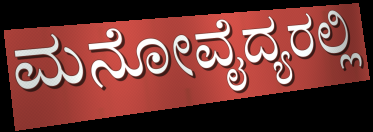
ಮನೋವೈದ್ಯರಲ್ಲಿ